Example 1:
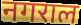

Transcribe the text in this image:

नगराल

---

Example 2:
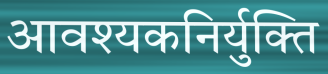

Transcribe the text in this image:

आवश्यकनिर्युक्ति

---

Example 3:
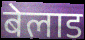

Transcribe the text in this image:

बेलाड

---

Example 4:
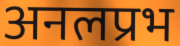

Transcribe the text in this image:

अनलप्रभ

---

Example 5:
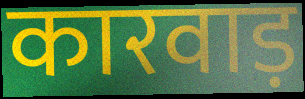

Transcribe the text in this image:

कारवाड़